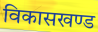
विकासखण्ड